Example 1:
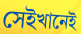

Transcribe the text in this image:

সেইখানেই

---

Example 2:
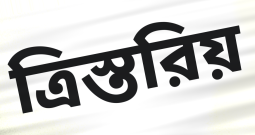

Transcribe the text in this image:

ত্রিস্তরিয়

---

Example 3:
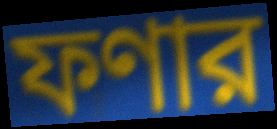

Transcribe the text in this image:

ফণার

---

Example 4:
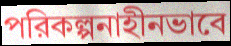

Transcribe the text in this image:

পরিকল্পনাহীনভাবে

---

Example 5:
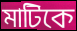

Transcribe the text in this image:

মাটিকে